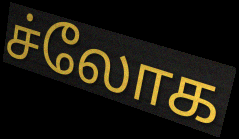
ச்லோக